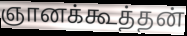
ஞானக்கூத்தன்